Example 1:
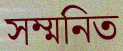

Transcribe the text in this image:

সম্মনিত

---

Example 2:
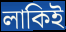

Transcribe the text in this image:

লাকিই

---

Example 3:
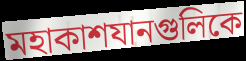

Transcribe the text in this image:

মহাকাশযানগুলিকে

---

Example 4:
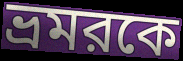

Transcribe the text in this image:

ভ্রমরকে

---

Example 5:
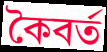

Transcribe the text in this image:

কৈবর্ত